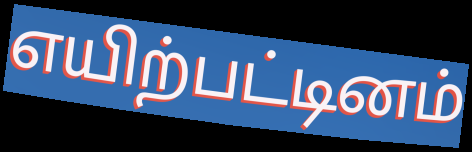
எயிற்பட்டினம்